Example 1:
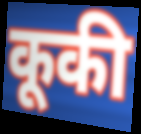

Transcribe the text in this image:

कूकी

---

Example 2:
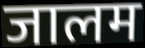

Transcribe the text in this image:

जालम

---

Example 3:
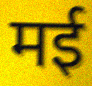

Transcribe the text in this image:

मई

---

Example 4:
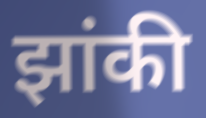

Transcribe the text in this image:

झांकी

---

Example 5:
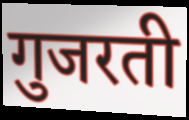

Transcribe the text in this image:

गुजरती